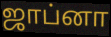
ஜாப்னா